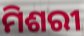
ମିଶରୀ